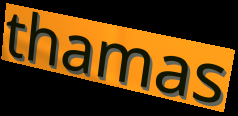
thamas